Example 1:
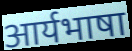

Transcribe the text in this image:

आर्यभाषा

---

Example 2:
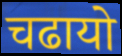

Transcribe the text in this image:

चढायो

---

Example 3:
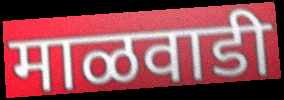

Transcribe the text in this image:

माळवाडी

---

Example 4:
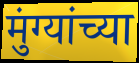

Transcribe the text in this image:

मुंग्यांच्या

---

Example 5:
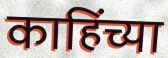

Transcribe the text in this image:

काहिंच्या